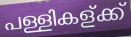
പള്ളികള്ക്ക്